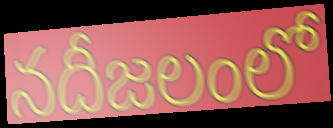
నదీజలంలో